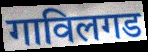
गाविलगड